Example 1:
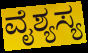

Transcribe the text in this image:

ವೈಶ್ಯಸ್ಯ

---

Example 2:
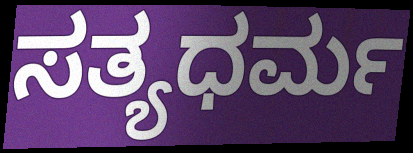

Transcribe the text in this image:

ಸತ್ಯಧರ್ಮ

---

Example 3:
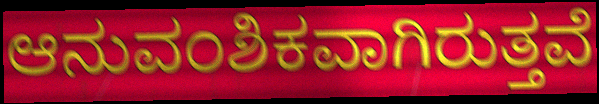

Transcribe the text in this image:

ಆನುವಂಶಿಕವಾಗಿರುತ್ತವೆ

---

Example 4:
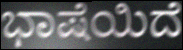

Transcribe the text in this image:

ಭಾಷೆಯಿದೆ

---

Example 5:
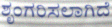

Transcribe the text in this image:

ಶೃಂಗರಿಸಲಾಗಿದೆ